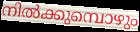
നിൽക്കുമ്പൊഴും